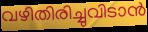
വഴിതിരിച്ചുവിടാൻ